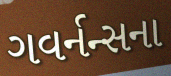
ગવર્નન્સના